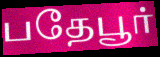
பதேபூர்